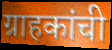
ग्राहकांची